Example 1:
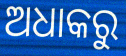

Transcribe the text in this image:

ଅଧାକରୁ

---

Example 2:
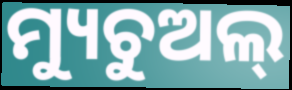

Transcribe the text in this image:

ମ୍ୟୁଚୁଅଲ୍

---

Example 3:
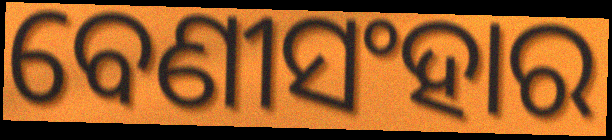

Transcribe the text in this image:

ବେଣୀସଂହାର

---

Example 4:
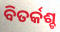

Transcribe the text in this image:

ବିତର୍କଶ୍ଚ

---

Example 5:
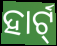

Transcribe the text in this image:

ହାର୍ଟ୍